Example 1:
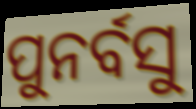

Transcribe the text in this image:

ପୁନର୍ବସୁ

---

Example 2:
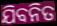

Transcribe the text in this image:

ଯିବନିତ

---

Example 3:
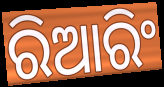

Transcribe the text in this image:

ରିଆରିଂ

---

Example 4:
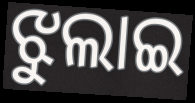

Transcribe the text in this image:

ଝୁଲାଇ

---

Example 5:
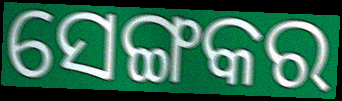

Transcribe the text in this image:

ସେଙ୍ଗକର